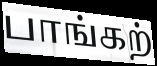
பாங்கற்